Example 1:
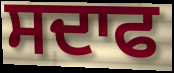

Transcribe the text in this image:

ਸਦਾਫ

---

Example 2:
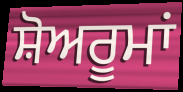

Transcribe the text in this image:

ਸ਼ੋਅਰੂਮਾਂ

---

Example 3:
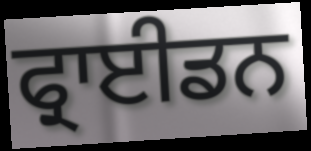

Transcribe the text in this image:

ਫ੍ਰਾਈਡਨ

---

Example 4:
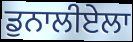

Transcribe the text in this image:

ਡੁਨਾਲੀਏਲਾ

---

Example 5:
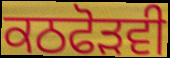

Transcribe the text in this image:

ਕਠਫੋੜਵੀ